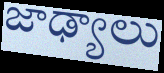
జాఢ్యాలు